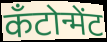
कँटोन्मेंट